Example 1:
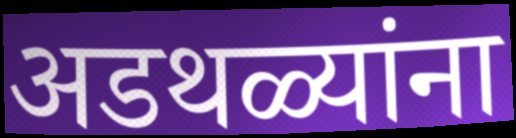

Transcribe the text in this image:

अडथळ्यांना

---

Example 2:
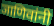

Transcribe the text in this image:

जाणिवांनी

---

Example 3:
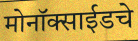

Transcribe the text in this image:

मोनॉक्साईडचे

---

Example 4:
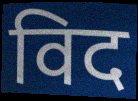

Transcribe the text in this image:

विद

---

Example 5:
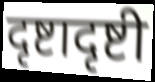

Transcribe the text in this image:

दृष्टादृष्टी